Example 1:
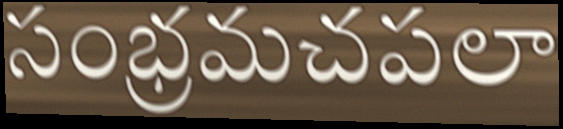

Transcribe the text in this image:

సంభ్రమచపలా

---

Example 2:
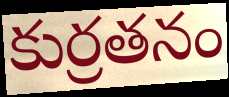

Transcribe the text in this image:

కుర్రతనం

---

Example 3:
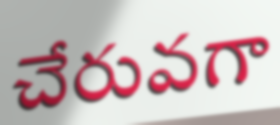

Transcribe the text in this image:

చేరువగా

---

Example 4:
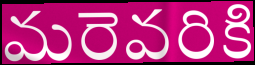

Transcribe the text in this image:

మరెవరికి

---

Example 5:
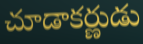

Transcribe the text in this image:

చూడాకర్ణుడు